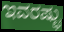
ಇವರಷ್ಟು